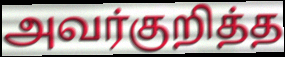
அவர்குறித்த